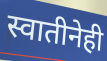
स्वातीनेही